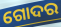
ଗୋଦର